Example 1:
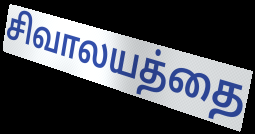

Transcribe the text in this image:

சிவாலயத்தை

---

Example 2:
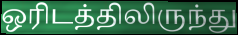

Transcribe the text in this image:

ஒரிடத்திலிருந்து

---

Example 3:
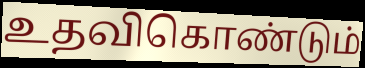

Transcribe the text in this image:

உதவிகொண்டும்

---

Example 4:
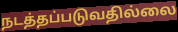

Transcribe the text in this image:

நடத்தப்படுவதில்லை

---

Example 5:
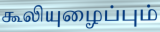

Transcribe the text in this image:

கூலியுழைப்பும்